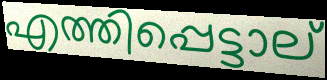
എത്തിപ്പെട്ടാല്